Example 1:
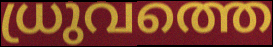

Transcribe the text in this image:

ധ്രുവത്തെ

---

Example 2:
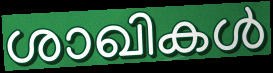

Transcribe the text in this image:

ശാഖികൾ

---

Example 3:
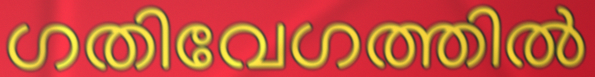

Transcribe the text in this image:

ഗതിവേഗത്തിൽ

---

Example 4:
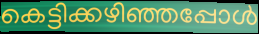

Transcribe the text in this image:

കെട്ടിക്കഴിഞ്ഞപ്പോൾ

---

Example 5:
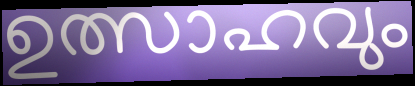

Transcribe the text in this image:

ഉത്സാഹവും